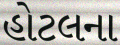
હોટલના